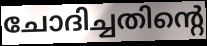
ചോദിച്ചതിന്റെ